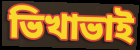
ভিখাভাই